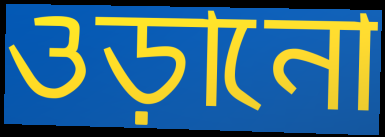
ওড়ানো